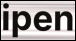
ipen